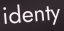
identy